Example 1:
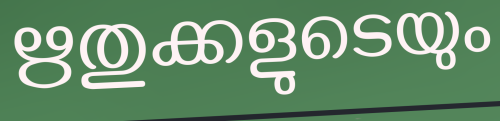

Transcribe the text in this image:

ഋതുക്കളുടെയും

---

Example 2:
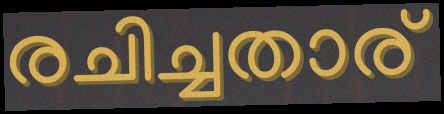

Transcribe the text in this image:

രചിച്ചതാര്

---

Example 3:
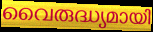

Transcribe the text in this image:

വൈരുദ്ധ്യമായി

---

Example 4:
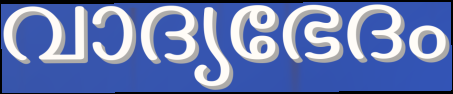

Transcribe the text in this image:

വാദ്യഭേദം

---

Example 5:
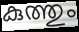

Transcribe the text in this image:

കുത്തും